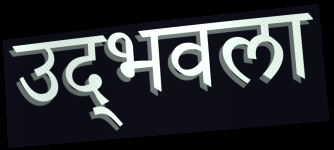
उद्‌भवला